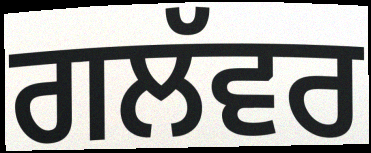
ਗਲੱਵਰ